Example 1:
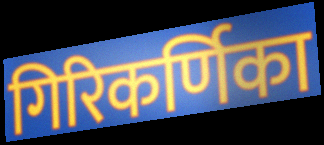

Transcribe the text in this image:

गिरिकर्णिका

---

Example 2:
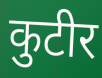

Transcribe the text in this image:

कुटीर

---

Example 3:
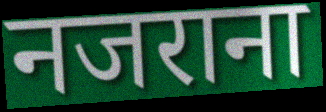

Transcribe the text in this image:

नजराना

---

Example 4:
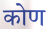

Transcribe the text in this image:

कोण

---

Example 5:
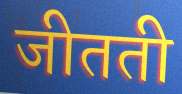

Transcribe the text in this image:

जीतती